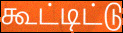
கூட்டிட்டு